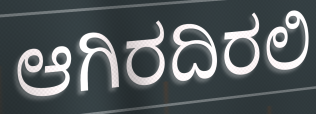
ಆಗಿರದಿರಲಿ